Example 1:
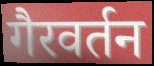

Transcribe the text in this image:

गैरवर्तन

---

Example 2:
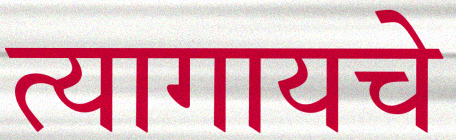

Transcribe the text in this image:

त्यागायचे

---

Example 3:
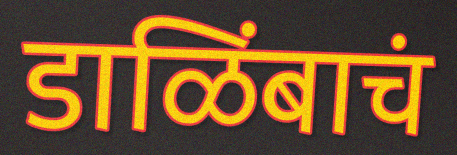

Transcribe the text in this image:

डाळिंबाचं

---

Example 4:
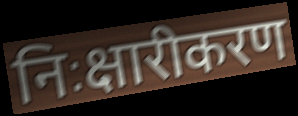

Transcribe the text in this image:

निःक्षारीकरण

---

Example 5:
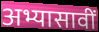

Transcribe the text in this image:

अभ्यासावीं